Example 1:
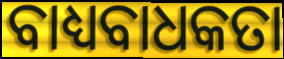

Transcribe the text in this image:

ବାଧ୍ୟବାଧକତା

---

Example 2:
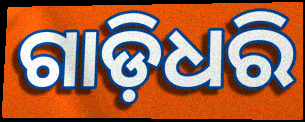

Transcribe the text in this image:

ଗାଡ଼ିଧରି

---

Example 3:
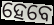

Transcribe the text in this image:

ହେବେ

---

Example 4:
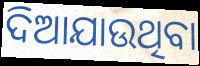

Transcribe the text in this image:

ଦିଆଯାଉଥିବା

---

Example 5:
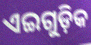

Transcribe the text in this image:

ଏଇଗୁଡ଼ିକ